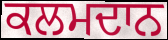
ਕਲਮਦਾਨ